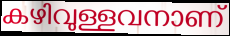
കഴിവുള്ളവനാണ്